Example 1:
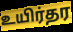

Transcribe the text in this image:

உயிர்தர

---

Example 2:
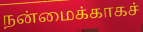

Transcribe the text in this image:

நன்மைக்காகச்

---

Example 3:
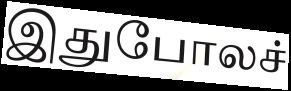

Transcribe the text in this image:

இதுபோலச்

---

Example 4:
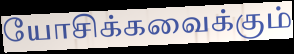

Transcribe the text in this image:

யோசிக்கவைக்கும்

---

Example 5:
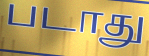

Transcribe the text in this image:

படாது